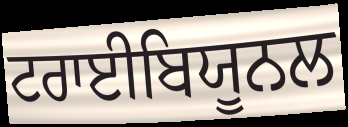
ਟਰਾਈਬਿਯੂਨਲ